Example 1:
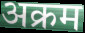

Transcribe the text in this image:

अक्रम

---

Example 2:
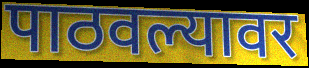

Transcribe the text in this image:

पाठवल्यावर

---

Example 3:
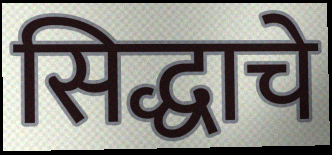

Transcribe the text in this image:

सिद्धाचे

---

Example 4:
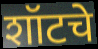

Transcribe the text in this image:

शॉटचे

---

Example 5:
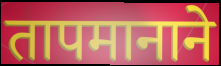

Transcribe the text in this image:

तापमानाने